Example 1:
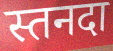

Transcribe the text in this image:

स्तनदा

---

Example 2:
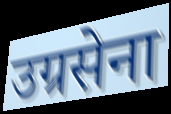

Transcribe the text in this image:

उग्रसेना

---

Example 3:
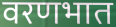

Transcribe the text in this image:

वरणभात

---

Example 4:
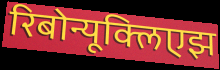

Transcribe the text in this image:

रिबोन्यूक्लिएझ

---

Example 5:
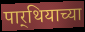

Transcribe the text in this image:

पार्थियाच्या